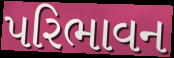
પરિભાવન